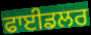
ਫਾਈਡਲਰ